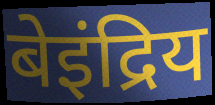
बेइंद्रिय